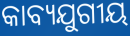
କାବ୍ୟଯୁଗୀୟ